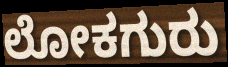
ಲೋಕಗುರು